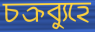
চক্রব্যুহে